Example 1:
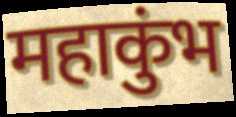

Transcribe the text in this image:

महाकुंभ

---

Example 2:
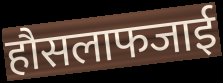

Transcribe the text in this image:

हौसलाफजाई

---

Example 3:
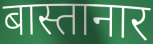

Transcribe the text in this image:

बास्तानार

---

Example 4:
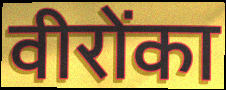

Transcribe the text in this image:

वीरोंका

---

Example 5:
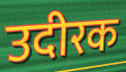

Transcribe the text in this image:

उदीरक